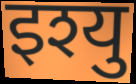
इश्यु